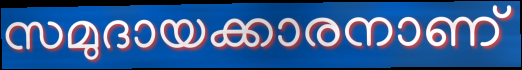
സമുദായക്കാരനാണ്